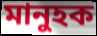
মানুহক